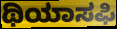
ಥಿಯಾಸಫಿ